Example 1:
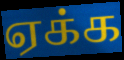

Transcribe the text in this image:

ஏக்க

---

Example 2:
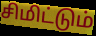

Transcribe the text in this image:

சிமிட்டும்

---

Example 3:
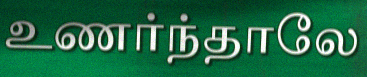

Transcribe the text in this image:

உணர்ந்தாலே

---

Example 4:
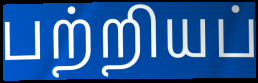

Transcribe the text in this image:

பற்றியப்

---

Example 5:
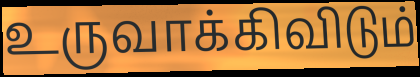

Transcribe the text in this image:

உருவாக்கிவிடும்